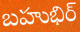
బహుభిర్